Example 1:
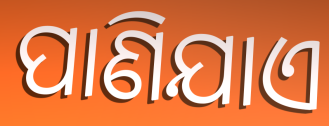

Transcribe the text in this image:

ପାଣିଯାଏ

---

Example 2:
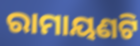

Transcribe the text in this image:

ରାମାୟଣଟି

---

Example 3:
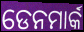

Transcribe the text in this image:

ଡେନମାର୍କ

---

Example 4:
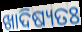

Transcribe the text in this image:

ଖାଦିଷ୍ଯତଃ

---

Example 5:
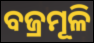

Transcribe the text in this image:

ବଜ୍ରମୂଳି